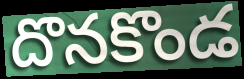
దొనకొండ